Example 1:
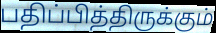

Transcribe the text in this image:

பதிப்பித்திருக்கும்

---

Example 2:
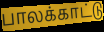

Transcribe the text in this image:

பாலக்காட்டு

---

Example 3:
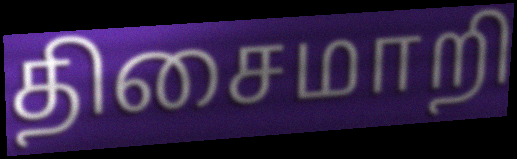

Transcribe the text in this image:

திசைமாறி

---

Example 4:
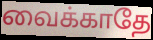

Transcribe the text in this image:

வைக்காதே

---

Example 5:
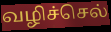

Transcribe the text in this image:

வழிச்செல்